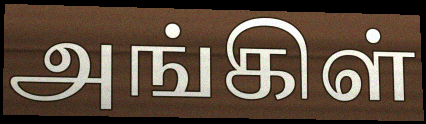
அங்கிள்